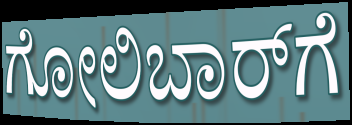
ಗೋಲಿಬಾರ್‌ಗೆ